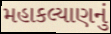
મહાકલ્યાણનું